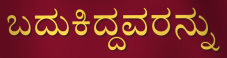
ಬದುಕಿದ್ದವರನ್ನು